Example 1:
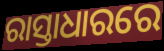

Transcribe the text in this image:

ରାସ୍ତାଧାରରେ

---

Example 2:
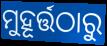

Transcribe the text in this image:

ମୁହୂର୍ତ୍ତଠାରୁ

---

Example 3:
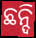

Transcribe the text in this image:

ଛନ୍ଦି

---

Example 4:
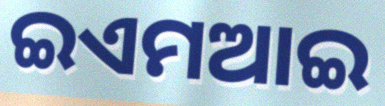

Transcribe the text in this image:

ଇଏମଆଇ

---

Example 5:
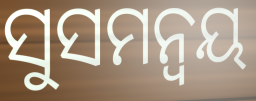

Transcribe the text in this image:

ସୁସମନ୍ୱୟ